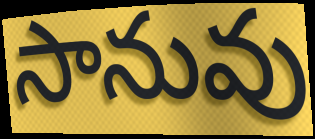
సానువు